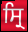
ਸ੍ਰਿ